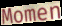
Momen